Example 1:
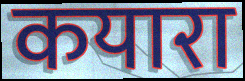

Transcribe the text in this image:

कयारा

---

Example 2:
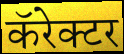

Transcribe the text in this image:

कॅरेक्टर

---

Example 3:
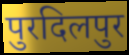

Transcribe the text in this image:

पुरदिलपुर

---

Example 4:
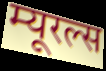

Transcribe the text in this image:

म्यूरल्स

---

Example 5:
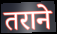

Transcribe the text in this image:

तराने